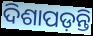
ଦିଶାପଡ଼ନ୍ତି